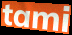
tami